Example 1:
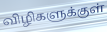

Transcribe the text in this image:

விழிகளுக்குள்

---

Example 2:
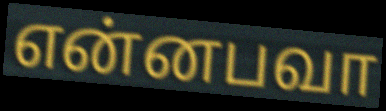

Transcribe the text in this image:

என்னபவா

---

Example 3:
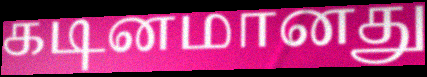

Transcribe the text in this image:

கடினமானது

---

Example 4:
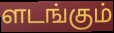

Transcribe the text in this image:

ளடங்கும்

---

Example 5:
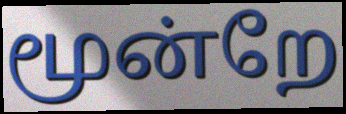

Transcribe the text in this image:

மூன்றே